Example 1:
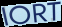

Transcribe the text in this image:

IORT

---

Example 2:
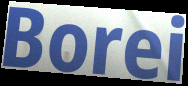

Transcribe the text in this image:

Borei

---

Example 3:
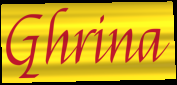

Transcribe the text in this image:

Ghrina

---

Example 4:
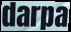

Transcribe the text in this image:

darpa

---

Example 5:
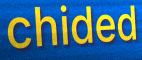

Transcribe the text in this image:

chided